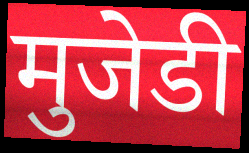
मुजेडी